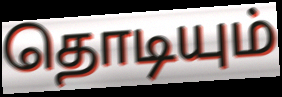
தொடியும்